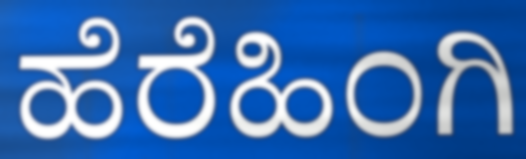
ಹೆರೆಹಿಂಗಿ